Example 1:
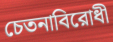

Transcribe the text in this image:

চেতনাবিরোধী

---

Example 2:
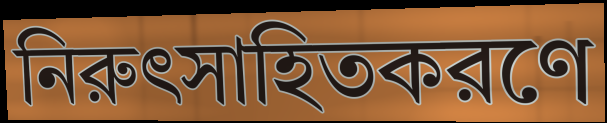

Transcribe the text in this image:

নিরুৎসাহিতকরণে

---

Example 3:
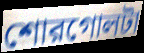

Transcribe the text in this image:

শোরগোলটা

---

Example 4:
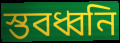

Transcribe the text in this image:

স্তবধ্বনি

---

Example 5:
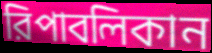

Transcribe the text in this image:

রিপাবলিকান